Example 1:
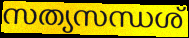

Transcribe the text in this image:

സത്യസന്ധശ്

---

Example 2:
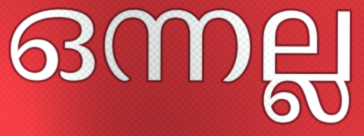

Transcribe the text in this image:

ഒന്നല്ല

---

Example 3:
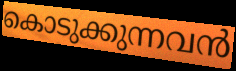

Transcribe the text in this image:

കൊടുക്കുന്നവൻ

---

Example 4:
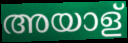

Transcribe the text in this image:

അയാള്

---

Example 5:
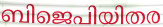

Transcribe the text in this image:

ബിജെപിയിതര